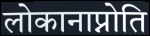
लोकानाप्नोति